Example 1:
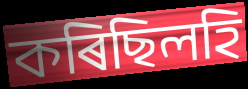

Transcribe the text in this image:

কৰিছিলহি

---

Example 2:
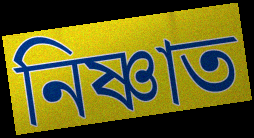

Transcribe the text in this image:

নিষ্ণাত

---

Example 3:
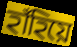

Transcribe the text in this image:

হাঁহিয়ে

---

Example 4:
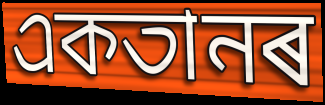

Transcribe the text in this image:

একতানৰ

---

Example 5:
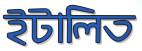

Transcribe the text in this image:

ইটালিত